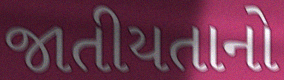
જાતીયતાનો